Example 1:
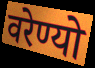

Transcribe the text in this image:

वरेण्यो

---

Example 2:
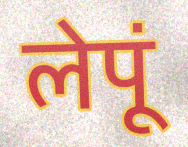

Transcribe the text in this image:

लेपूं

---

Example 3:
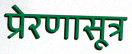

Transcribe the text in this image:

प्रेरणासूत्र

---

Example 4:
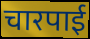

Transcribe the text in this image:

चारपाई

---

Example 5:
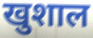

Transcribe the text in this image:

खुशाल